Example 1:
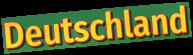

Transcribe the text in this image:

Deutschland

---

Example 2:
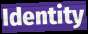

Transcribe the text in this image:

Identity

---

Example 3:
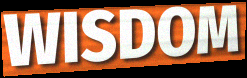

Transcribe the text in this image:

WISDOM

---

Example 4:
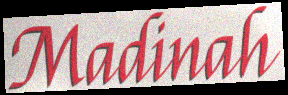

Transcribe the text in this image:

Madinah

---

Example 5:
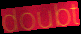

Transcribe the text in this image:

doubt